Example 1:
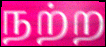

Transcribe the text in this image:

நற்ற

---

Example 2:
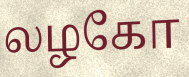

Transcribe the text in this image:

லழகோ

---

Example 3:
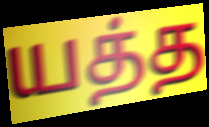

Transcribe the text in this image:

யத்த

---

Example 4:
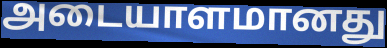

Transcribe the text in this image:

அடையாளமானது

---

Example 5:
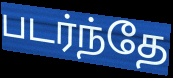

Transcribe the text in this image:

படர்ந்தே